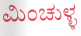
ಮಿಂಚುಳ್ಳ